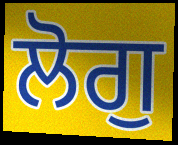
ਲੋਗੁ